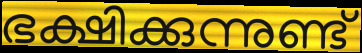
ഭക്ഷിക്കുന്നുണ്ട്